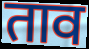
ताव